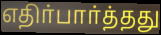
எதிர்பார்த்தது